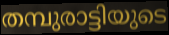
തമ്പുരാട്ടിയുടെ